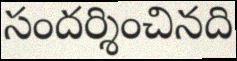
సందర్శించినది